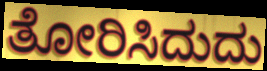
ತೋರಿಸಿದುದು